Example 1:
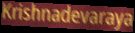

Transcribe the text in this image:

Krishnadevaraya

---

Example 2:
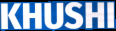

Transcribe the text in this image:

KHUSHI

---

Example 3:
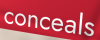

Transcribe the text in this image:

conceals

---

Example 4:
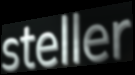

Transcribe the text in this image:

steller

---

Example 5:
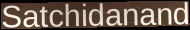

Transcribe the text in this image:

Satchidanand